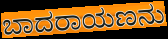
ಬಾದರಾಯಣನು